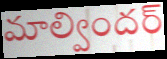
మాల్విందర్